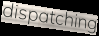
dispatching